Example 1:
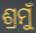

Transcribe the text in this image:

ଶ୍ରମୁଁ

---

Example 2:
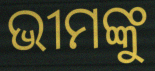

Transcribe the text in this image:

ଭୀମଙ୍କୁ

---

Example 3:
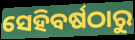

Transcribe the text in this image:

ସେହିବର୍ଷଠାରୁ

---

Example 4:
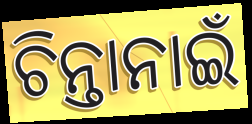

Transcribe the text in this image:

ଚିନ୍ତାନାଇଁ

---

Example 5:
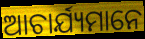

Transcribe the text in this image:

ଆଚାର୍ଯ୍ୟମାନେ